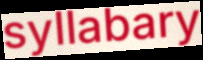
syllabary